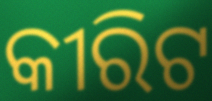
କୀରିଟ